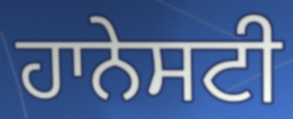
ਹਾਨੇਸਟੀ